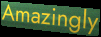
Amazingly